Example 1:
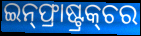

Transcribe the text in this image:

ଇନ୍‌ଫ୍ରାଷ୍ଟ୍ରକ୍‌ଚର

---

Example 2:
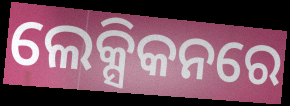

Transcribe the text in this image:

ଲେକ୍ସିକନରେ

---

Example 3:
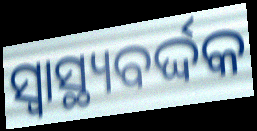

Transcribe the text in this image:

ସ୍ଵାସ୍ଥ୍ୟବର୍ଦ୍ଦକ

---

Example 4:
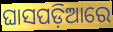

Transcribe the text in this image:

ଘାସପଡ଼ିଆରେ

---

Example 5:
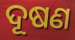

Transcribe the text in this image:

ଦୂଷଣ